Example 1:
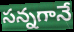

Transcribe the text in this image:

సన్నగానే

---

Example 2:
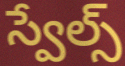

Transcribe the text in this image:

స్వేల్స్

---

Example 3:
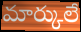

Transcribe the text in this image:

మార్కులే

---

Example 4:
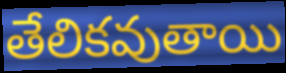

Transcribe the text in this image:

తేలికవుతాయి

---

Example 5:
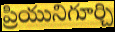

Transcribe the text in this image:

ప్రియునిగూర్చి